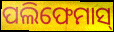
ପଲିଫେମାସ୍